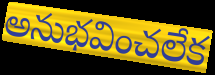
అనుభవించలేక